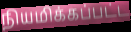
நியமிக்கப்பட்ட